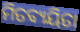
ମିତବ୍ୟୟିତା